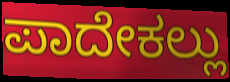
ಪಾದೇಕಲ್ಲು